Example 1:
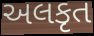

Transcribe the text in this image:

અલકૃત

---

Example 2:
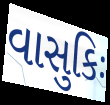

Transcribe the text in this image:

વાસુકિઃ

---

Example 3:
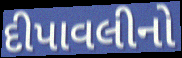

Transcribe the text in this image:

દીપાવલીનો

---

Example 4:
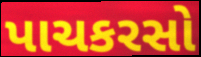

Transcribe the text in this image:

પાચકરસો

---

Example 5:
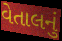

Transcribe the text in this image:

વેતાલનું